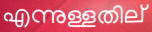
എന്നുള്ളതില്